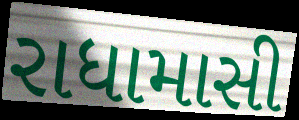
રાધામાસી